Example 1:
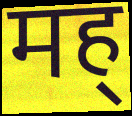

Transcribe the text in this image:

मह्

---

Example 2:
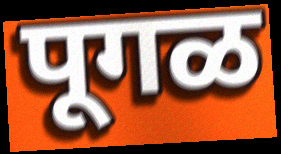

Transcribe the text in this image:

पूगळ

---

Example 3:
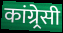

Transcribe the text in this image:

कांग्र्रेसी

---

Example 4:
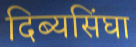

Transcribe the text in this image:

दिब्यसिंघा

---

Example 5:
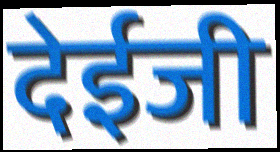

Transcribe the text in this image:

देईजी